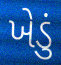
ખેડું